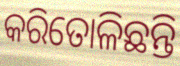
କରିତୋଳିଛନ୍ତି